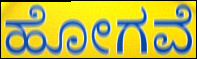
ಹೋಗವೆ